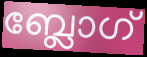
ബ്ലോഗ്